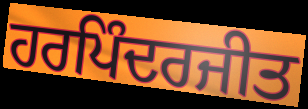
ਹਰਪਿੰਦਰਜੀਤ